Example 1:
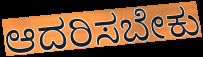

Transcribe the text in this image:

ಆದರಿಸಬೇಕು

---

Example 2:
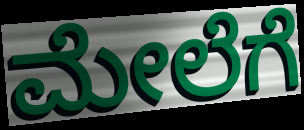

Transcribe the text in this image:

ಮೇಲೆಗೆ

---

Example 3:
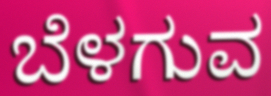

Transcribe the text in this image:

ಬೆಳಗುವ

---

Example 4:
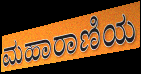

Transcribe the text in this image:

ಮಹಾರಾಣಿಯ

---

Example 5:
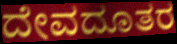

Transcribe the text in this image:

ದೇವದೂತರ